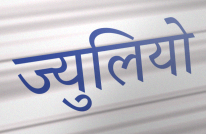
ज्युलियो